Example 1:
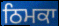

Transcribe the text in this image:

ਠਿਮਕਾ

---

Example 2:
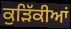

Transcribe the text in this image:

ਕੁੜਿੱਕੀਆਂ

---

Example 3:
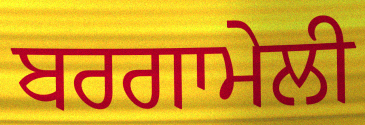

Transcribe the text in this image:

ਬਰਗਾਮੇਲੀ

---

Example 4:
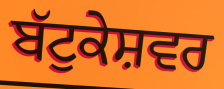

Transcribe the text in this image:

ਬੱਟੁਕੇਸ਼ਵਰ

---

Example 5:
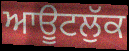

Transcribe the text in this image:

ਆਊਟਲੁੱਕ